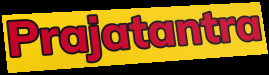
Prajatantra